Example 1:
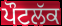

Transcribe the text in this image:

ਪੌਟਲੱਕ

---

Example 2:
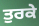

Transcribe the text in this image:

ਤੁਰਕੇ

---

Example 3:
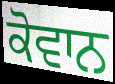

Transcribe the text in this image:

ਕੋਵਾਨ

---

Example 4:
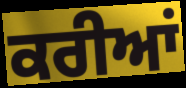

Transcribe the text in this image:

ਕਰੀਆਂ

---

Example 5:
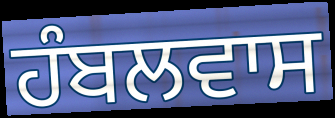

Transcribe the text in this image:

ਹੰਬਲਵਾਸ